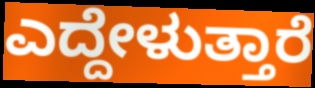
ಎದ್ದೇಳುತ್ತಾರೆ